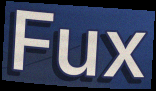
Fux